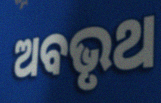
ଅବଭୃଥ